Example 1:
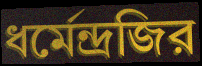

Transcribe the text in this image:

ধর্মেন্দ্রজির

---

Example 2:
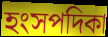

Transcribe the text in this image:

হংসপদিকা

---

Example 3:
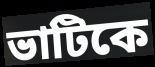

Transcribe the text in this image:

ভাটিকে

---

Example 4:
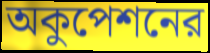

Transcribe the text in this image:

অকুপেশনের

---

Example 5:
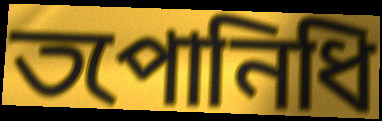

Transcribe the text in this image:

তপোনিধি